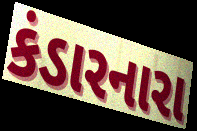
કંડારનારા